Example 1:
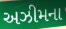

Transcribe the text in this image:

અઝીમના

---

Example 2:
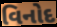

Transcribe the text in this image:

વિનોદ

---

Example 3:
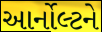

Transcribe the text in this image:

આર્નોલ્ટને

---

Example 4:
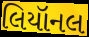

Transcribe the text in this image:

લિયૉનલ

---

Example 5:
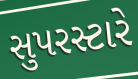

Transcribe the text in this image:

સુપરસ્ટારે